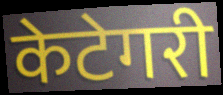
केटेगरी